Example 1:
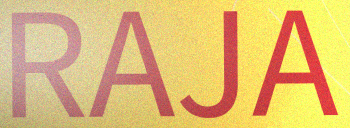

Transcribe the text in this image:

RAJA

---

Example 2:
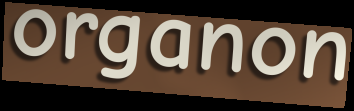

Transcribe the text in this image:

organon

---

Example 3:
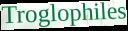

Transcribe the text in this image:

Troglophiles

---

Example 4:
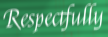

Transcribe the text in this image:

Respectfully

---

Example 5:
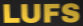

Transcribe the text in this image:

LUFS